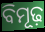
ବିମୂଢ଼